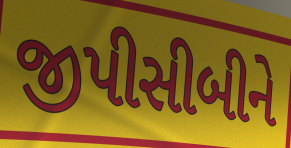
જીપીસીબીને